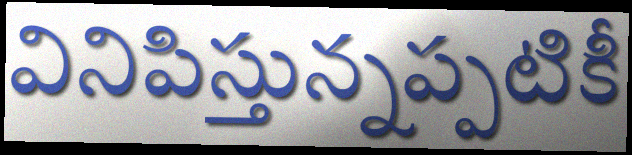
వినిపిస్తున్నప్పటికీ